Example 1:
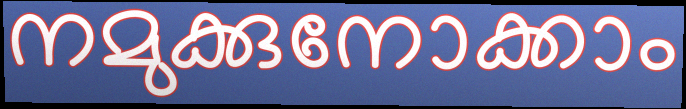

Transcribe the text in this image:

നമുക്കുനോക്കാം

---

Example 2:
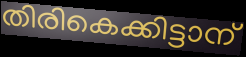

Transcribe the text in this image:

തിരികെക്കിട്ടാന്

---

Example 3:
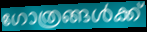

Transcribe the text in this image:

ഗോത്രങ്ങൾക്ക്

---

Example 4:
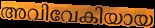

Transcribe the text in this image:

അവിവേകിയായ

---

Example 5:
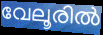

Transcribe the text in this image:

വേലൂരിൽ